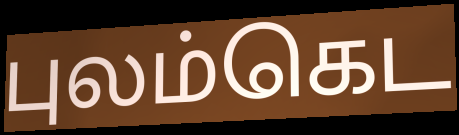
புலம்கெட